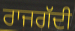
ਰਾਜਗੱਦੀ